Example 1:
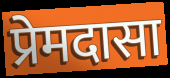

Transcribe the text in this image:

प्रेमदासा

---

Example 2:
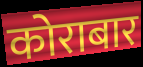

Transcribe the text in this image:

कोराबार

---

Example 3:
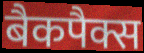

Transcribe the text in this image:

बैकपैक्स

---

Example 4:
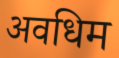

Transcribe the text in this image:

अवधिम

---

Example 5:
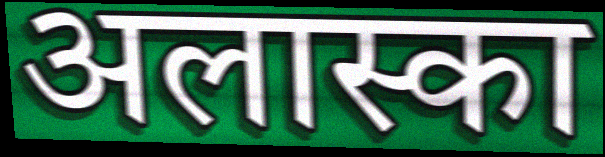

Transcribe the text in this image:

अलास्का